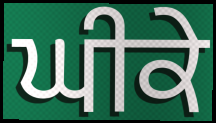
ਘੀਕੇ